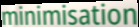
minimisation